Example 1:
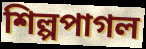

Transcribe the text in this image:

শিল্পপাগল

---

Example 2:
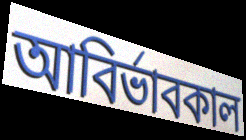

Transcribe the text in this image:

আবির্ভাবকাল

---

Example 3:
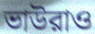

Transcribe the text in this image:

ভাউরাও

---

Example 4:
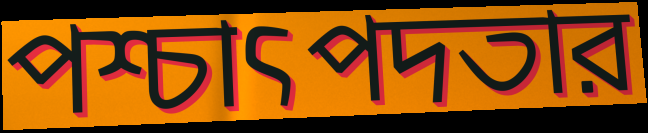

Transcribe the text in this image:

পশ্চাৎপদতার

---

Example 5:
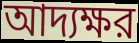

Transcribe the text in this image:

আদ্যক্ষর